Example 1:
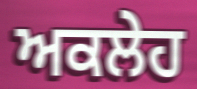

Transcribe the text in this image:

ਅਕਲੇਹ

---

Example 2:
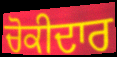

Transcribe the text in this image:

ਚੋਕੀਦਾਰ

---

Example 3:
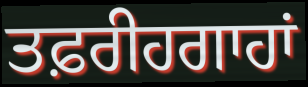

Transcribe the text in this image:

ਤਫ਼ਰੀਹਗਾਹਾਂ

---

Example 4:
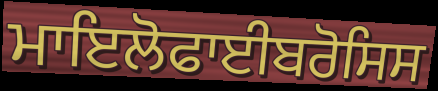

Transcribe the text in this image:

ਮਾਇਲੋਫਾਈਬਰੋਸਿਸ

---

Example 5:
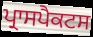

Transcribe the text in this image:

ਪ੍ਰਾਸਪੈਕਟਸ